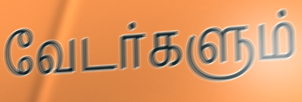
வேடர்களும்